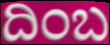
ದಿಂಬ